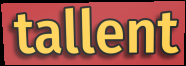
tallent